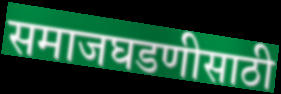
समाजघडणीसाठी